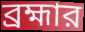
ব্রহ্মার